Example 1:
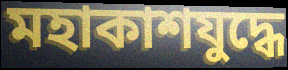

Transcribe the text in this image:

মহাকাশযুদ্ধে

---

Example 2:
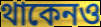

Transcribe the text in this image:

থাকেনও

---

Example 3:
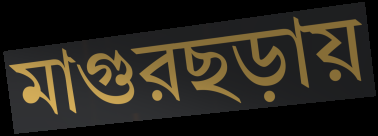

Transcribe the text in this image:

মাগুরছড়ায়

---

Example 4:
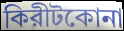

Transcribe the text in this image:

কিরীটকোনা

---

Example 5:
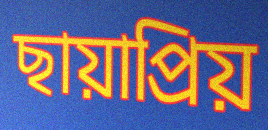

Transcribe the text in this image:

ছায়াপ্রিয়